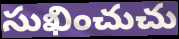
సుఖించుచు